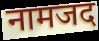
नामजद